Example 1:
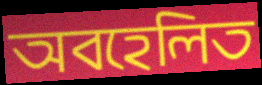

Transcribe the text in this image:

অবহেলিত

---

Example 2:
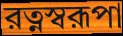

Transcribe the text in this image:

রত্নস্বরূপা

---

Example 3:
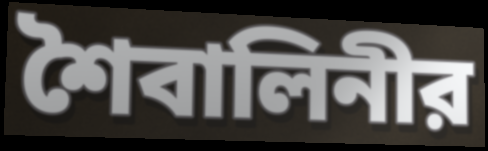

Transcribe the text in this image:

শৈবালিনীর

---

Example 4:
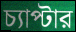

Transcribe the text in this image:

চ্যাপ্টার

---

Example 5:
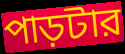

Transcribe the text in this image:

পাড়টার